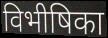
विभीषिका